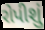
રોપીશું